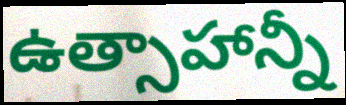
ఉత్సాహాన్నీ